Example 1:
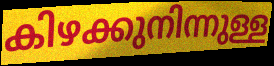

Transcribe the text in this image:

കിഴക്കുനിന്നുള്ള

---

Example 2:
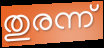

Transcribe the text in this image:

തുരന്ന്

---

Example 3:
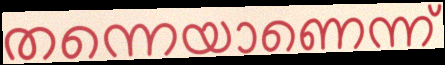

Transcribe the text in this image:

തന്നെയാണെന്ന്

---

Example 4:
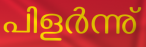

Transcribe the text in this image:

പിളർന്നു്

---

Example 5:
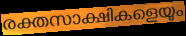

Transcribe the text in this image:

രക്തസാക്ഷികളെയും